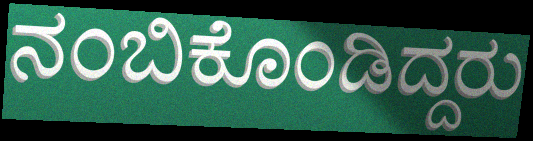
ನಂಬಿಕೊಂಡಿದ್ದರು